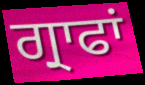
ਗ੍ਰਾਫਾਂ